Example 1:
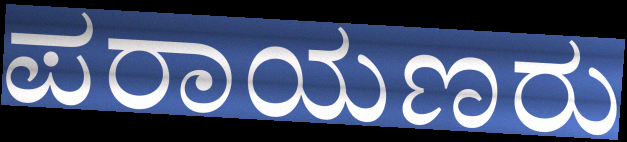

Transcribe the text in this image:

ಪರಾಯಣರು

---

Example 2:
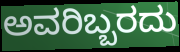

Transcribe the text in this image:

ಅವರಿಬ್ಬರದು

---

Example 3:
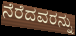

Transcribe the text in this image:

ನೆರೆದವರನ್ನು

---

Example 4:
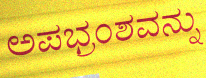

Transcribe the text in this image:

ಅಪಭ್ರಂಶವನ್ನು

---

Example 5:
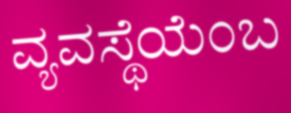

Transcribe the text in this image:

ವ್ಯವಸ್ಥೆಯೆಂಬ